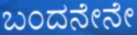
ಬಂದನೇನೇ